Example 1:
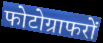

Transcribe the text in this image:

फोटोग्राफरों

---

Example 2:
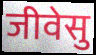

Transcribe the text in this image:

जीवेसु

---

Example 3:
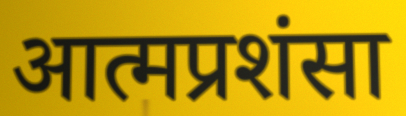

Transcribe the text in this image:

आत्मप्रशंसा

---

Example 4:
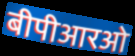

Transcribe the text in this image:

बीपीआरओ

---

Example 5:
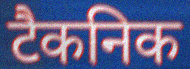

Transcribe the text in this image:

टैकनिक